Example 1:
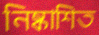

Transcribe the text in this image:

নিষ্কাশিত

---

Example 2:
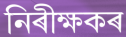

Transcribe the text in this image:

নিৰীক্ষকৰ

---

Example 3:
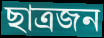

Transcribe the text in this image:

ছাত্ৰজন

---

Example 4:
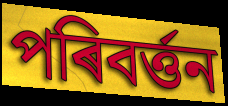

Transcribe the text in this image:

পৰিবৰ্ত্তন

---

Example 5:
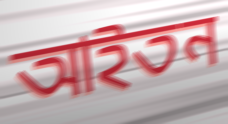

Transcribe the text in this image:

আইতন